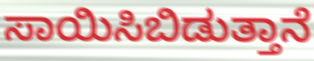
ಸಾಯಿಸಿಬಿಡುತ್ತಾನೆ